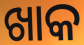
ଖାକ